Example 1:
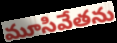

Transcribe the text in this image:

మూసివేతను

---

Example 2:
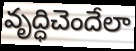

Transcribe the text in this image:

వృద్ధిచెందేలా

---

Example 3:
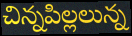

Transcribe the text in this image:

చిన్నపిల్లలున్న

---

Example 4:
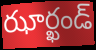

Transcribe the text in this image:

ఝార్ఖండ్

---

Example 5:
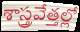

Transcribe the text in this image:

శాస్త్రవేత్తల్లో